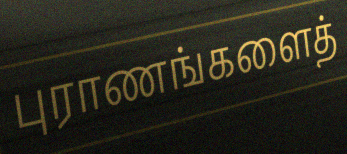
புராணங்களைத்